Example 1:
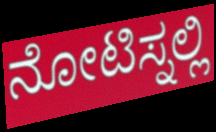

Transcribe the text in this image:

ನೋಟಿಸ್ನಲ್ಲಿ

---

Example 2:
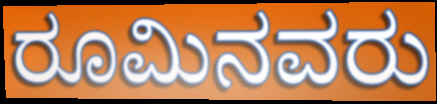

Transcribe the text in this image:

ರೂಮಿನವರು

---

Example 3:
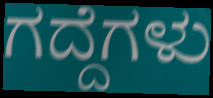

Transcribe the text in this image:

ಗದ್ದೆಗಳು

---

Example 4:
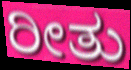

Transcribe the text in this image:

ರೀತು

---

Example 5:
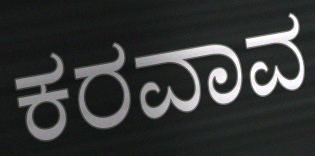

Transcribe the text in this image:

ಕರವಾವ